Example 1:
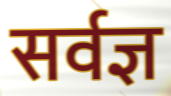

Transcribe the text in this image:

सर्वज्ञ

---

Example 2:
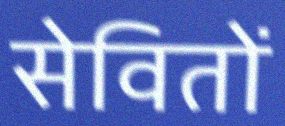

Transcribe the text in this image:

सेवितों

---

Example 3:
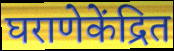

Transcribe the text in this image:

घराणेकेंद्रित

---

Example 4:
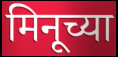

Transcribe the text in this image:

मिनूच्या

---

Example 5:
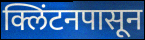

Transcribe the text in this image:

क्लिंटनपासून